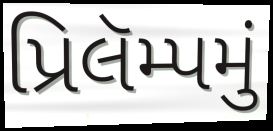
પ્રિલૅમ્પમું